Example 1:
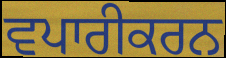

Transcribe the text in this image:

ਵਪਾਰੀਕਰਨ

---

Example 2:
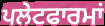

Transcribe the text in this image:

ਪਲੇਟਫਾਰਮਾਂ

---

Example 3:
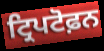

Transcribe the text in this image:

ਟ੍ਰਿਪਟੋਫ਼ਨ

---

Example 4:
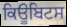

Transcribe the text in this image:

ਕਿਊਬਿਟਸ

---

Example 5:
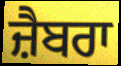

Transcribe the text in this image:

ਜ਼ੈਬਰਾ